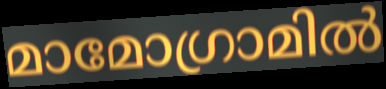
മാമോഗ്രാമിൽ